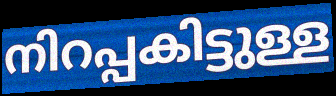
നിറപ്പകിട്ടുള്ള